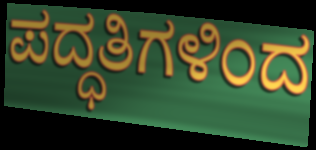
ಪದ್ಧತಿಗಳಿಂದ